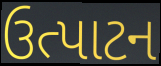
ઉત્પાટન